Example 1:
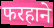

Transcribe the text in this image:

फरहाने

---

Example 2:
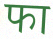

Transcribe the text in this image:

फा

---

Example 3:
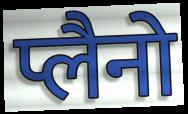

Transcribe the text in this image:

प्लैनो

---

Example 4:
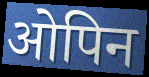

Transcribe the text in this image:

ओपिन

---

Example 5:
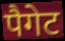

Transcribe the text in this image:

पैगेट